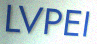
LVPEI